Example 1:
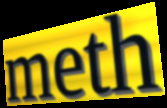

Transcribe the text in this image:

meth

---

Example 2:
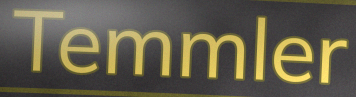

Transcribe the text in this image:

Temmler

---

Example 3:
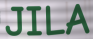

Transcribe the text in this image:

JILA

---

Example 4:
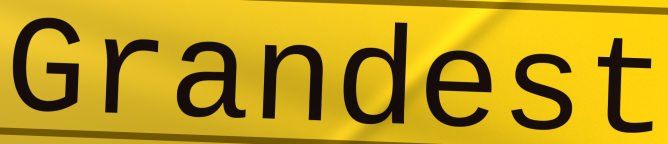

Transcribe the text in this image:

Grandest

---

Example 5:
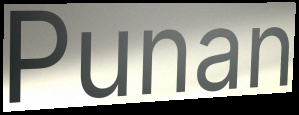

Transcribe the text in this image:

Punan